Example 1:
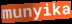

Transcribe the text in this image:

munyika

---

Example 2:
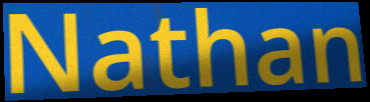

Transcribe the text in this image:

Nathan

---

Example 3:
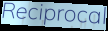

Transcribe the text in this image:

Reciprocal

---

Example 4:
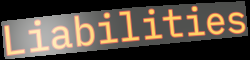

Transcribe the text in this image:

Liabilities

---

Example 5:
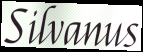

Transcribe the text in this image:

Silvanus